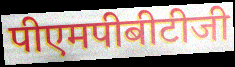
पीएमपीबीटीजी